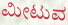
ಮೀಟುವ